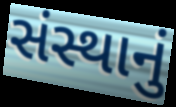
સંસ્થાનું